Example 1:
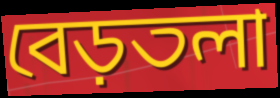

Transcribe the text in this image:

বেড়তলা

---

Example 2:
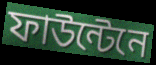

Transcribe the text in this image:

ফাউন্টেনে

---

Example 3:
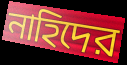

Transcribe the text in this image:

নাহিদের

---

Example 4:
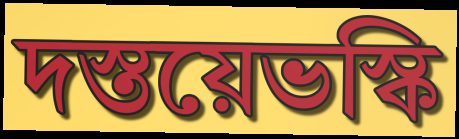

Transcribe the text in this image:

দস্তয়েভস্কি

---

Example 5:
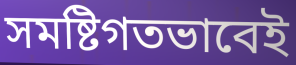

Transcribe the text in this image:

সমষ্টিগতভাবেই